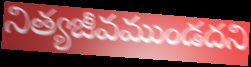
నిత్యజీవముండదని